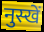
नुस्खें